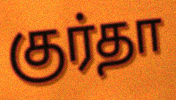
குர்தா